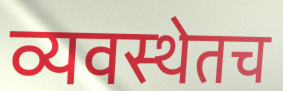
व्यवस्थेतच